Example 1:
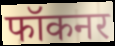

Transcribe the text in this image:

फॉकनर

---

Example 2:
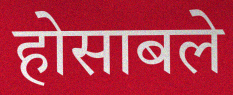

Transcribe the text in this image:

होसाबले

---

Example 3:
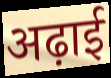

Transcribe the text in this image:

अढ़ाई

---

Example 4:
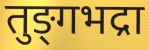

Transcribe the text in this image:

तुङ्गभद्रा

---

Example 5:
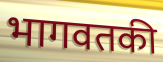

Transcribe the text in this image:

भागवतकी